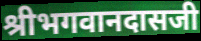
श्रीभगवानदासजी